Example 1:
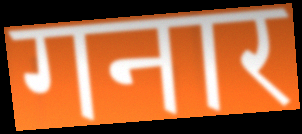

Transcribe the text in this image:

गनार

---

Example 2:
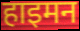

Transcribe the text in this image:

हाइमन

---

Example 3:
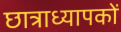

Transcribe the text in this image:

छात्राध्यापकों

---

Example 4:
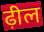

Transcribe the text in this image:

ढ़ील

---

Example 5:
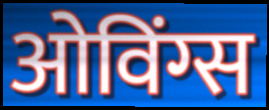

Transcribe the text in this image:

ओविंग्स